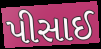
પીસાઈ